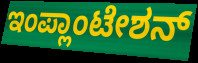
ಇಂಪ್ಲಾಂಟೇಶನ್